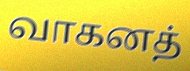
வாகனத்